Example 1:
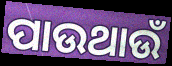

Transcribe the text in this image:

ପାଉଥାଉଁ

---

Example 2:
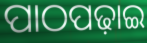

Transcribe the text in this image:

ପାଠପଢ଼ାଇ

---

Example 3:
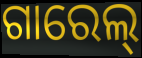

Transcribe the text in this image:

ଗାରେଲ୍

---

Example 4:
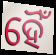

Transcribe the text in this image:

ହୈଁ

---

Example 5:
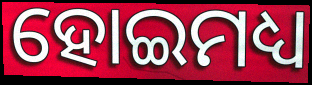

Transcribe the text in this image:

ହୋଇମଧ୍ୟ